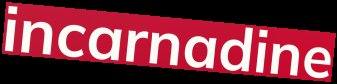
incarnadine